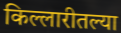
किल्लारीतल्या